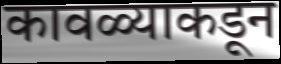
कावळ्याकडून